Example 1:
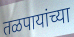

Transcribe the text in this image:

तळपायांच्या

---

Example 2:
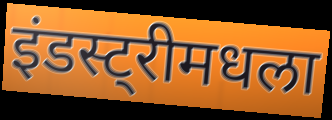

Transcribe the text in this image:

इंडस्ट्रीमधला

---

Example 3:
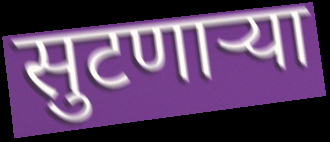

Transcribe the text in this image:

सुटणाऱ्या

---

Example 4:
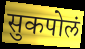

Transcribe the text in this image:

सुकपोलं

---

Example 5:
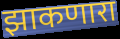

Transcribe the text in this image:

झाकणारा